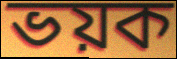
ভয়ক